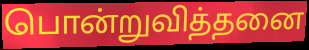
பொன்றுவித்தனை